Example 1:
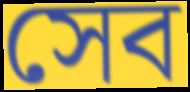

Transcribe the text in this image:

সেব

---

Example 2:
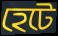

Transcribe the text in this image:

হেটে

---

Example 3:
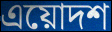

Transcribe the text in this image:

এয়োদশ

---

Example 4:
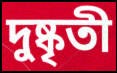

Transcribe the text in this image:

দুষ্কৃতী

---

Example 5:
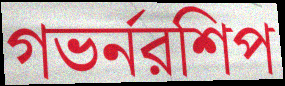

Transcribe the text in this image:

গভর্নরশিপ